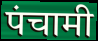
पंचामी